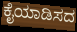
ಕೈಯಾಡಿಸದ